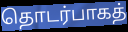
தொடர்பாகத்